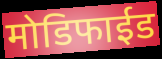
मोडिफाईड